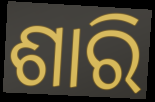
ଶାରି